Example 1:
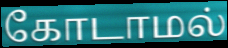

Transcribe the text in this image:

கோடாமல்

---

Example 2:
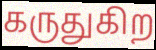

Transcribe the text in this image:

கருதுகிற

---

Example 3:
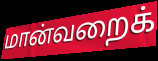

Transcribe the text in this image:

மான்வறைக்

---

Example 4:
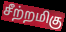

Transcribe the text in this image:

சீற்றமிகு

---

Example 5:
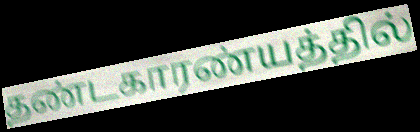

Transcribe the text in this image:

தண்டகாரண்யத்தில்